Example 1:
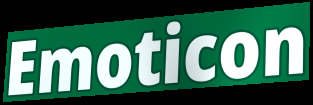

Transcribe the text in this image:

Emoticon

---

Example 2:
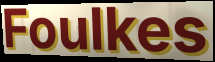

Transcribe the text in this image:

Foulkes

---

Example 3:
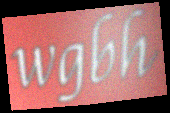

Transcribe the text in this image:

wgbh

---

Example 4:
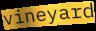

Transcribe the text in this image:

vineyard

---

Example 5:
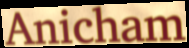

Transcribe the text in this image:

Anicham